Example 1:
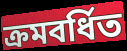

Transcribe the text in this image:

ক্ৰমবৰ্ধিত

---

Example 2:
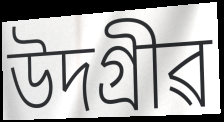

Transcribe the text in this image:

উদগ্ৰীৱ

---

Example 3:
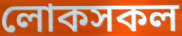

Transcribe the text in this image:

লোকসকল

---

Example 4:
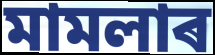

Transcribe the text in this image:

মামলাৰ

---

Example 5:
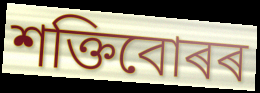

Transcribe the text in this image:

শক্তিবোৰৰ